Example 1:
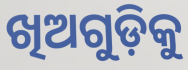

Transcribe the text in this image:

ଖିଅଗୁଡ଼ିକୁ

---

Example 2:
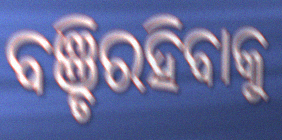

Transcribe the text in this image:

ବଞ୍ଚିରହିବାକୁ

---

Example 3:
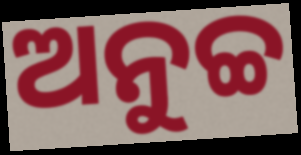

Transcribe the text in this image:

ଅନୁଚ୍ଚ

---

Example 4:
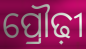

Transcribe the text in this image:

ପ୍ରୌଢ଼ୀ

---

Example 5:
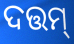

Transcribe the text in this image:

ଦତ୍ତମ୍